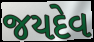
જયદેવ